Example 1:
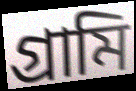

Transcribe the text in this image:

গ্রামি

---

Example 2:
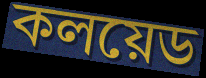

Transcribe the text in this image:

কলয়েড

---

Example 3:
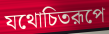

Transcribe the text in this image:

যথোচিতরূপে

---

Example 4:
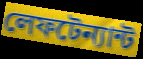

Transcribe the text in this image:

লেফটেন্যান্ট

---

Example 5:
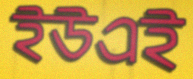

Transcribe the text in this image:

ইউএই